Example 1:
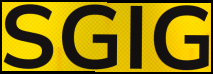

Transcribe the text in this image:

SGIG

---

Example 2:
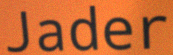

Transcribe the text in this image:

Jader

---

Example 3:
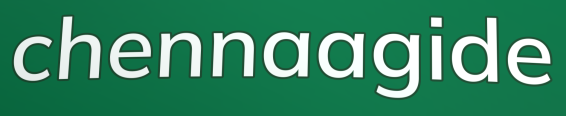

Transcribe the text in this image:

chennaagide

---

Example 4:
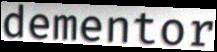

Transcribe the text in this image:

dementor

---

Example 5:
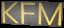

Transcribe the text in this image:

KFM